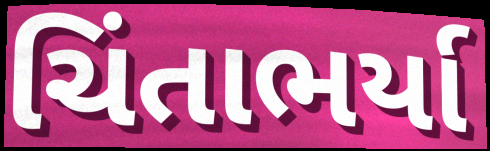
ચિંતાભર્યા